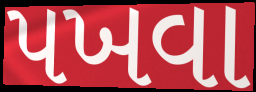
પખવા